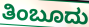
ತಿಂಬೂದು